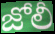
జోలీ